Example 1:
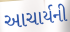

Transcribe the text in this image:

આચાર્યની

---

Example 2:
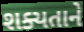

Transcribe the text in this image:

શક્યતાને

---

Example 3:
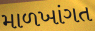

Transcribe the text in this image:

માળખાંગત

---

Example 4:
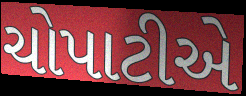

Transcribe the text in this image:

ચોપાટીએ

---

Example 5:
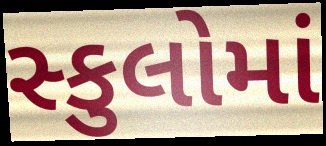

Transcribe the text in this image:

સ્કુલોમાં